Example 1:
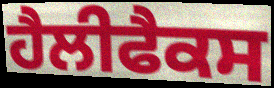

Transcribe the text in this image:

ਹੈਲੀਫੈਕਸ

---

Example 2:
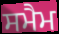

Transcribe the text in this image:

ਸਮੈਮ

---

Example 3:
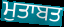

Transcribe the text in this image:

ਮੁਤਾਬਤ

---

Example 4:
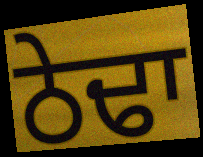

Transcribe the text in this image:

ਠੇਢਾ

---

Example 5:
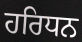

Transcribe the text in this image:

ਹਰਿਧਨ